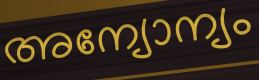
അന്യോന്യം